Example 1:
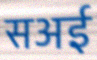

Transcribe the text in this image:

सअई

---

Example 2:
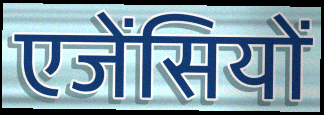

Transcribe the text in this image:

एजेंसियों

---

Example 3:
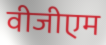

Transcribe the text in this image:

वीजीएम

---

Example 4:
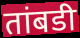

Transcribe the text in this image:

तांबडी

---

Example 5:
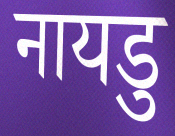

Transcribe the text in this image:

नायडु